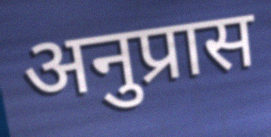
अनुप्रास